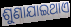
ଶୁଣାଯାଇଥାଏ